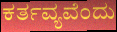
ಕರ್ತವ್ಯವೆಂದು